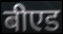
बीएड